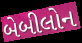
બેબીલોન